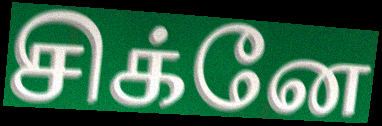
சிக்னே